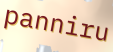
panniru